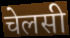
चेलसी